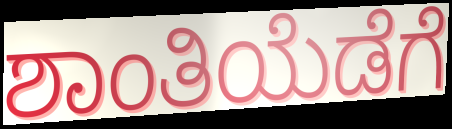
ಶಾಂತಿಯೆಡೆಗೆ